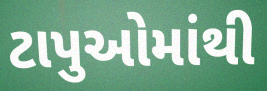
ટાપુઓમાંથી